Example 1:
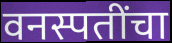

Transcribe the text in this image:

वनस्पतींचा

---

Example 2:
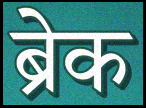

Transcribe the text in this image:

ब्रेक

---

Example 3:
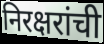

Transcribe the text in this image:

निरक्षरांची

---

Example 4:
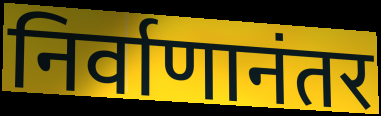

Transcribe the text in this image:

निर्वाणानंतर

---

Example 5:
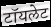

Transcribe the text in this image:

टॉयलेट